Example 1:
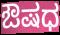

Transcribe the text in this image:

ಔಷಧ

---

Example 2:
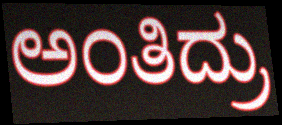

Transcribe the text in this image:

ಅಂತಿದ್ರು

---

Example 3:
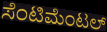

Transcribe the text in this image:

ಸೆಂಟಿಮೆಂಟಲ್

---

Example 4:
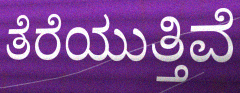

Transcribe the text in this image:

ತೆರೆಯುತ್ತಿವೆ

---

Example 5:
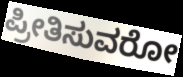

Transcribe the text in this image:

ಪ್ರೀತಿಸುವರೋ